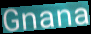
Gnana